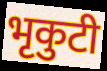
भृकुटी